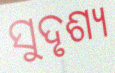
ସୁଦୃଶ୍ଯ